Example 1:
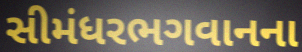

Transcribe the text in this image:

સીમંધરભગવાનના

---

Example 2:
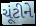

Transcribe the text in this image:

ચૂંટીને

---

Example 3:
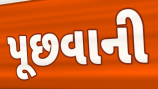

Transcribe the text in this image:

પૂછવાની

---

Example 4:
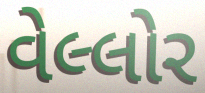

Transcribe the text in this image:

વેલ્લોર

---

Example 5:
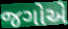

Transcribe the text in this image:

જગોએ